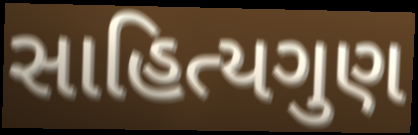
સાહિત્યગુણ